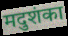
मदुशंका